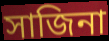
সাজিনা